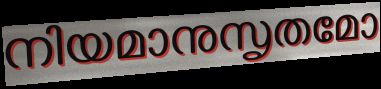
നിയമാനുസൃതമോ